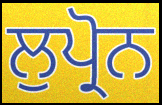
ਲੁਪ੍ਰੋਨ